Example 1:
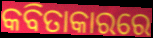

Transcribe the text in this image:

କବିତାକାରରେ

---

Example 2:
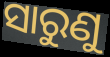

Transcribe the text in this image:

ସାରୁଣୁ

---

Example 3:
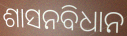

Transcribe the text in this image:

ଶାସନବିଧାନ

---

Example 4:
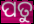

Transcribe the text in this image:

ପତୁ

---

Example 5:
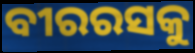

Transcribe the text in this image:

ବୀରରସକୁ